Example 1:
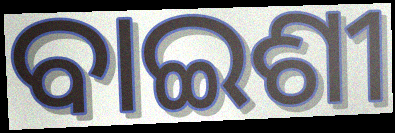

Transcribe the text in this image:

ବାଇଶୀ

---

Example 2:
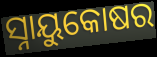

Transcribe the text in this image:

ସ୍ନାୟୁକୋଷର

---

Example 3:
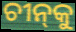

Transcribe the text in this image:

ଚୀନ୍‌କୁ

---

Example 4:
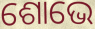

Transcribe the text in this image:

ଶୋଭେ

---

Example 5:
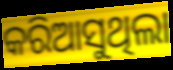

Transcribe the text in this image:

କରିଆସୁଥିଲା